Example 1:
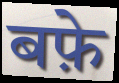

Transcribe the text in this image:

बफ़े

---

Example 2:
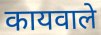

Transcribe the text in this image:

कायवाले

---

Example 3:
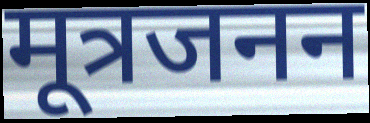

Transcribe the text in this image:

मूत्रजनन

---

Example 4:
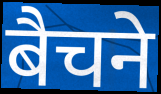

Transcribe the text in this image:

बैचने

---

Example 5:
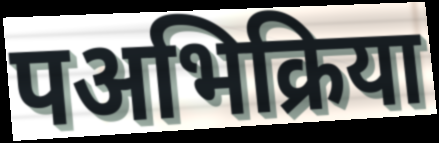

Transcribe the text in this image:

पअभिक्रिया